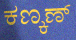
ಕಣ್ಕಣ್